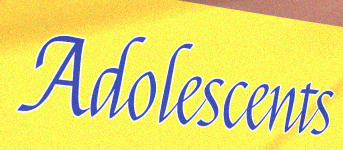
Adolescents